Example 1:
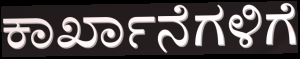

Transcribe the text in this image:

ಕಾರ್ಖಾನೆಗಳಿಗೆ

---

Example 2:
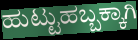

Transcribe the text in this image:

ಹುಟ್ಟುಹಬ್ಬಕ್ಕಾಗಿ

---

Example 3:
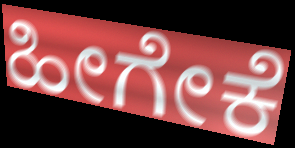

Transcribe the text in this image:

ಹೀಗೇಕೆ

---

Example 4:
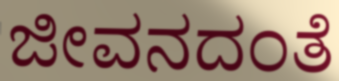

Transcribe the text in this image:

ಜೀವನದಂತೆ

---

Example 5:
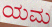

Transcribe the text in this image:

ಯಮ